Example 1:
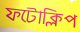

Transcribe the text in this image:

ফটোক্লিপ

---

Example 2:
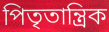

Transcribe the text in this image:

পিতৃতান্ত্ৰিক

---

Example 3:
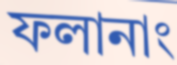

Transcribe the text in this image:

ফলানাং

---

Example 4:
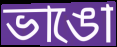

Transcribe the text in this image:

ভাঙো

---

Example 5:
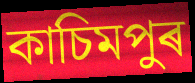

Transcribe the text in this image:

কাচিমপুৰ